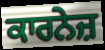
ਕਾਰਨੇਜ਼